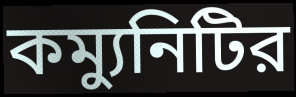
কম্যুনিটির